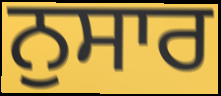
ਨੁਸਾਰ